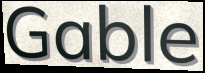
Gable